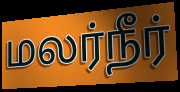
மலர்நீர்